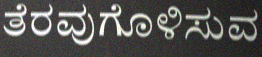
ತೆರವುಗೊಳಿಸುವ